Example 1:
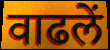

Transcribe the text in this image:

वाढलें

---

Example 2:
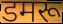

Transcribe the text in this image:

डमरू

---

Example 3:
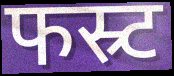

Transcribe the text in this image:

फस्र्ट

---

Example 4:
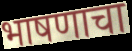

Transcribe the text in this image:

भाषणाचा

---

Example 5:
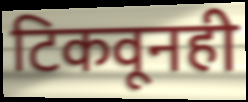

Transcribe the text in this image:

टिकवूनही